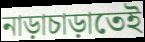
নাড়াচাড়াতেই